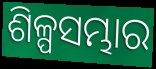
ଶିଳ୍ପସମ୍ଭାର